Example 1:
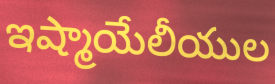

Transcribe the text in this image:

ఇష్మాయేలీయుల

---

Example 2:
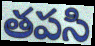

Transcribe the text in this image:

తపసి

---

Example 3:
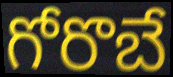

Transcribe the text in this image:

గోరొబే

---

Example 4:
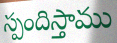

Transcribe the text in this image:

స్పందిస్తాము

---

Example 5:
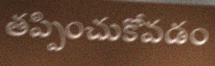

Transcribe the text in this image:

తప్పించుకోవడం